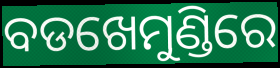
ବଡଖେମୁଣ୍ଡିରେ